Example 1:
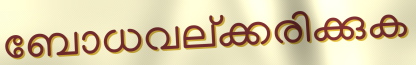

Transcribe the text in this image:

ബോധവല്ക്കരിക്കുക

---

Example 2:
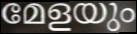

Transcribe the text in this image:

മേളയും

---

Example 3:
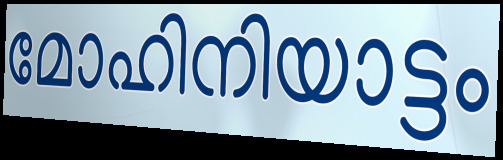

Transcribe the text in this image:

മോഹിനിയാട്ടം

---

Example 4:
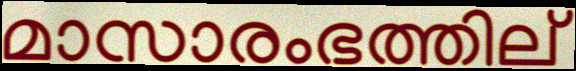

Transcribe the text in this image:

മാസാരംഭത്തില്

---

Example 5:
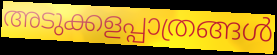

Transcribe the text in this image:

അടുക്കളപ്പാത്രങ്ങൾ